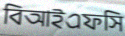
বিআইএফসি